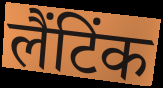
लैंटिंक